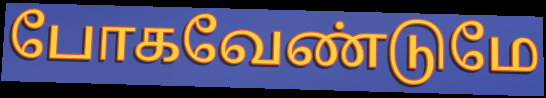
போகவேண்டுமே